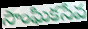
సాంఘికసేవ